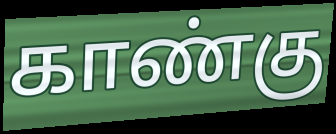
காண்கு